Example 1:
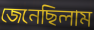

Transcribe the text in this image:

জেনেছিলাম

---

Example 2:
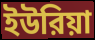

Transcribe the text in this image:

ইউরিয়া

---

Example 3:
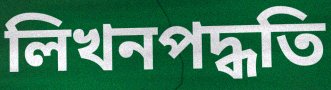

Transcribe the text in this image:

লিখনপদ্ধতি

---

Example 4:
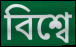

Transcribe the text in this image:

বিশ্বে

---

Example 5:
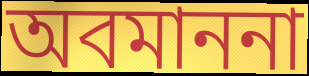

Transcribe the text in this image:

অবমাননা